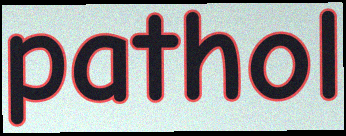
pathol